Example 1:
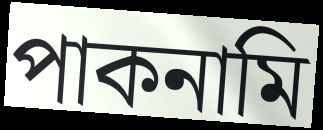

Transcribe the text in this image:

পাকনামি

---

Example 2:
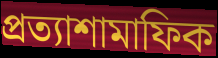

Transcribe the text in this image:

প্রত্যাশামাফিক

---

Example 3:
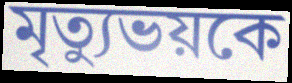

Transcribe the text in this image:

মৃত্যুভয়কে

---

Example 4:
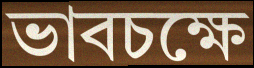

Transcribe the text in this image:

ভাবচক্ষে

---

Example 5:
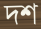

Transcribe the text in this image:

দশ